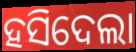
ହସିଦେଲା